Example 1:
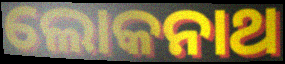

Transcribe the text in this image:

ଲୋକନାଥ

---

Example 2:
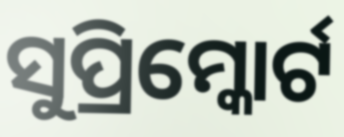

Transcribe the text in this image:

ସୁପ୍ରିମ୍କୋର୍ଟ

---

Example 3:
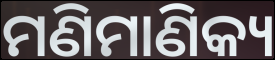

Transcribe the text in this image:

ମଣିମାଣିକ୍ୟ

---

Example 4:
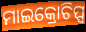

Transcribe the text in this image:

ମାଇକ୍ରୋଚିପ୍ସ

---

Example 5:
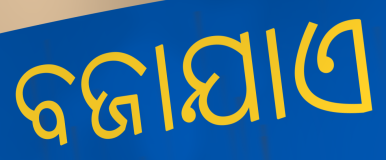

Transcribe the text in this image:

ବଜାଯାଏ